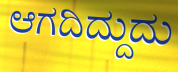
ಆಗದಿದ್ದುದು